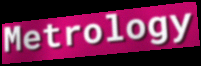
Metrology